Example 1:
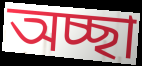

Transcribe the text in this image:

অচ্ছা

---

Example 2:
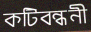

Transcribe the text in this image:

কটিবন্ধনী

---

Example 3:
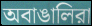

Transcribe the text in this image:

অবাঙালিরা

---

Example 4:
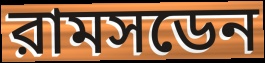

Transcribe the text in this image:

রামসডেন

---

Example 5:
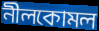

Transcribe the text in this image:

নীলকোমল